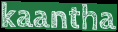
kaantha